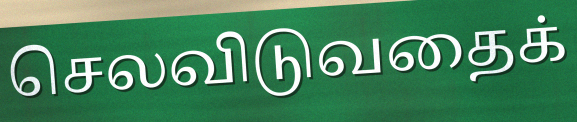
செலவிடுவதைக்